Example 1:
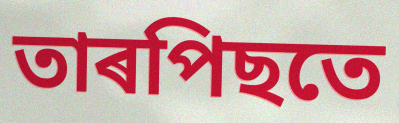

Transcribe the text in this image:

তাৰপিছতে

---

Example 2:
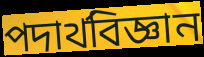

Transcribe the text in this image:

পদাৰ্থবিজ্ঞান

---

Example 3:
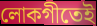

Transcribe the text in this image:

লোকগীতেই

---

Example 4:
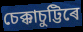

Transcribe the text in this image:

চেক্কাচুট্টিৰে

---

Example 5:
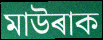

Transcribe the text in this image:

মাউৰাক